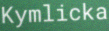
Kymlicka